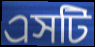
এসটি